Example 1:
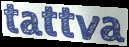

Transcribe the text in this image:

tattva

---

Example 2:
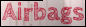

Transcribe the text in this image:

Airbags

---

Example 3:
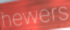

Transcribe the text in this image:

hewers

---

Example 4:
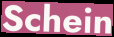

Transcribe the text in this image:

Schein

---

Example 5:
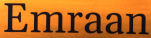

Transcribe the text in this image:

Emraan